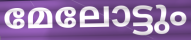
മേലോട്ടും